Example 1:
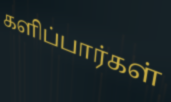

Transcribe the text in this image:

களிப்பார்கள்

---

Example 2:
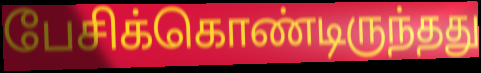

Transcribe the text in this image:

பேசிக்கொண்டிருந்தது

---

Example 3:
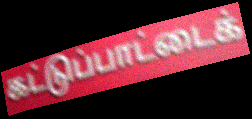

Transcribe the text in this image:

கட்டுப்பாட்டைக்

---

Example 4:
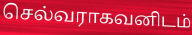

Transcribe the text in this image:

செல்வராகவனிடம்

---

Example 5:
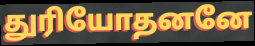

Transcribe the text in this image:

துரியோதனனே